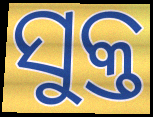
ସୁକ୍ତ